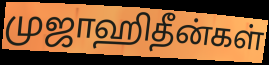
முஜாஹிதீன்கள்